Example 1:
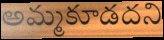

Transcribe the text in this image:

అమ్మకూడదని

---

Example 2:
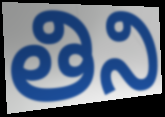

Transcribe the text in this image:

తిని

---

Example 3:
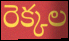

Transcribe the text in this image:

రెక్కల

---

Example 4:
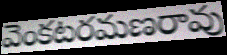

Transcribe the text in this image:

వెంకటరమణరావు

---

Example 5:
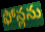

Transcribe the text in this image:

ఫోన్లను